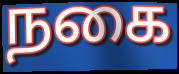
நகை